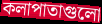
কলাপাতাগুলো